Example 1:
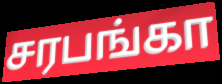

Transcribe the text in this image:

சரபங்கா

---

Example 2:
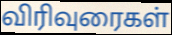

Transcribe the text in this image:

விரிவுரைகள்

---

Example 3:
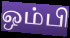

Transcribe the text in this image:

ஒம்பி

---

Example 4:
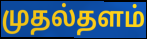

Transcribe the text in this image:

முதல்தளம்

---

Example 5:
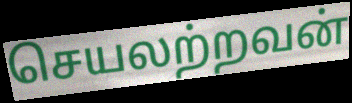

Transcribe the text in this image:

செயலற்றவன்